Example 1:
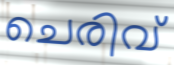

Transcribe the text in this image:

ചെരിവ്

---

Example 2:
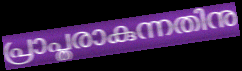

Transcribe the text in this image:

പ്രാപ്തരാകുന്നതിനു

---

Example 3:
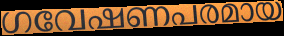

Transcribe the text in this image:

ഗവേഷണപരമായ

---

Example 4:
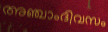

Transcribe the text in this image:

അഞ്ചാംദിവസം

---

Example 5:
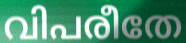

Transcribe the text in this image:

വിപരീതേ